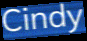
Cindy